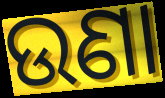
ଉଣା